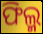
ଫିଲ୍ମ